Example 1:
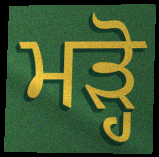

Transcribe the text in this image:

ਮੜ੍ਹੋ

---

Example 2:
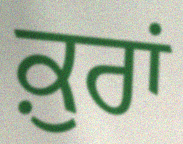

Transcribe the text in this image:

ਕ਼ੁਰਾਂ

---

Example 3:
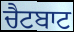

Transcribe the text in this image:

ਚੈਟਬਾਟ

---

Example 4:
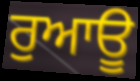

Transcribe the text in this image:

ਰੁਆਊ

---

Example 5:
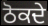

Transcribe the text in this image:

ਠੋਕਦੇ